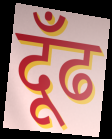
दूँढ